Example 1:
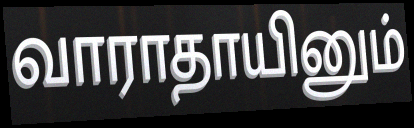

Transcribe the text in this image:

வாராதாயினும்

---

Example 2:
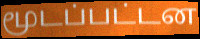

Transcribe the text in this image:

மூடப்பட்டன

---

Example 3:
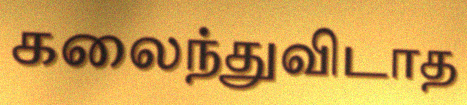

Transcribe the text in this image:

கலைந்துவிடாத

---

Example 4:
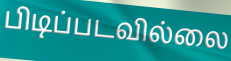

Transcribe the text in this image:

பிடிப்படவில்லை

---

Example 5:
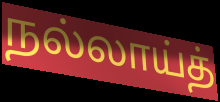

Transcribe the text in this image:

நல்லாய்த்